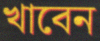
খাবেন